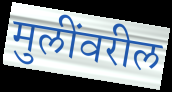
मुलींवरील